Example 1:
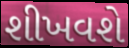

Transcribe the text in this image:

શીખવશે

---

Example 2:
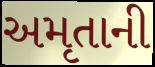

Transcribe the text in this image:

અમૃતાની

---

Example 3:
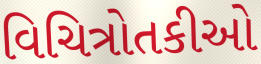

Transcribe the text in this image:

વિચિત્રોતકીઓ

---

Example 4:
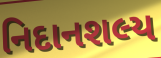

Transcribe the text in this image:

નિદાનશલ્ય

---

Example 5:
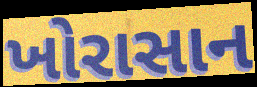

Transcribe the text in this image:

ખોરાસાન